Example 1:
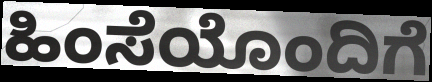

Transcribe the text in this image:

ಹಿಂಸೆಯೊಂದಿಗೆ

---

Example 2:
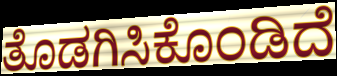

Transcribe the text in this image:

ತೊಡಗಿಸಿಕೊಂಡಿದೆ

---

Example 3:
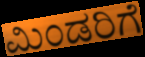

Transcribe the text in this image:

ಮಿಂಡರಿಗೆ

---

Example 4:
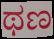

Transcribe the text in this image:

ಥಣ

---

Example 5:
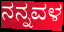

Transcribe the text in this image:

ನನ್ನವಳ